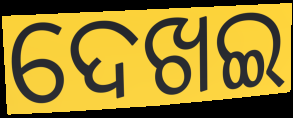
ଦେଖଇ